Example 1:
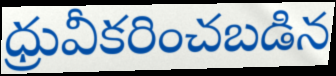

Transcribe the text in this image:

ధ్రువీకరించబడిన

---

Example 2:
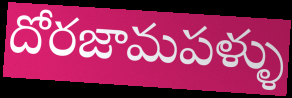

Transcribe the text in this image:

దోరజామపళ్ళు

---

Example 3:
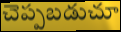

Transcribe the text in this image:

చెప్పబడుచూ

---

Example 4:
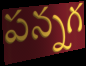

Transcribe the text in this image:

పన్నగ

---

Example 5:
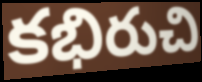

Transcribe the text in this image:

కభిరుచి